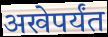
अखेपर्यंत